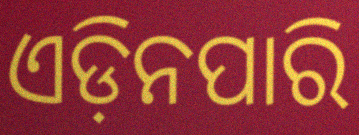
ଏଡ଼ିନପାରି